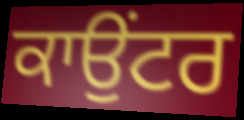
ਕਾਉਂਟਰ